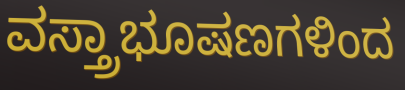
ವಸ್ತ್ರಾಭೂಷಣಗಳಿಂದ